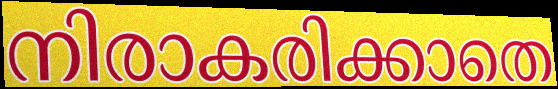
നിരാകരിക്കാതെ